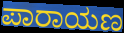
ಪಾರಾಯಣ